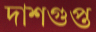
দাশগুপ্ত